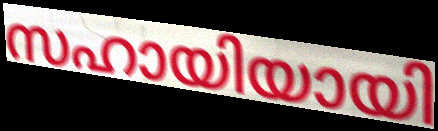
സഹായിയായി